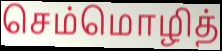
செம்மொழித்